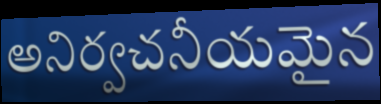
అనిర్వచనీయమైన